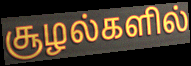
சூழல்களில்